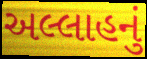
અલ્લાહનું